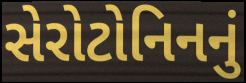
સેરોટોનિનનું